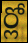
ర్లో